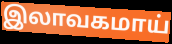
இலாவகமாய்